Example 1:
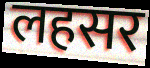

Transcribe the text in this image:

लहसर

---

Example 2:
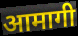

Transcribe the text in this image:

आमागी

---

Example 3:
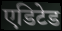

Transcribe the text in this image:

एडिटेड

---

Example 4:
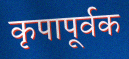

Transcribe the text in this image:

कृपापूर्वक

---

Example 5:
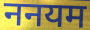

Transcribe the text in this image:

ननयम